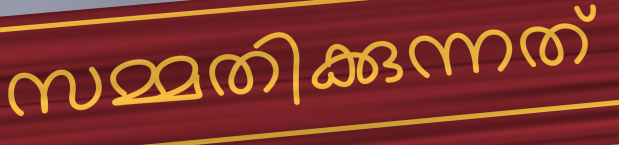
സമ്മതിക്കുന്നത്